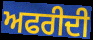
ਅਫਰੀਦੀ